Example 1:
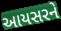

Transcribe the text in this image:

આયસરને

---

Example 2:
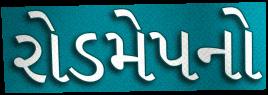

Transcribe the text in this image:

રોડમેપનો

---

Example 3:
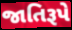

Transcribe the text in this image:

જાતિરૂપે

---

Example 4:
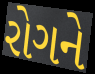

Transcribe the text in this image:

રોગને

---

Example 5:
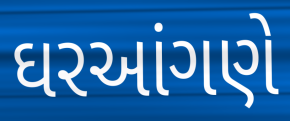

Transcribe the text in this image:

ઘરઆંગણે